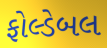
ફોલ્ડેબલ